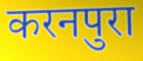
करनपुरा